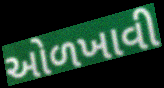
ઓળખાવી